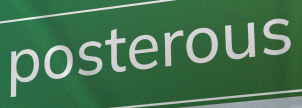
posterous